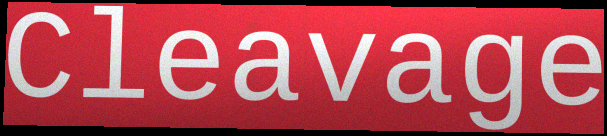
Cleavage